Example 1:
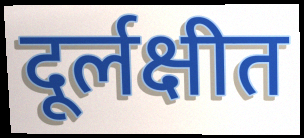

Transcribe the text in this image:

दूर्लक्षीत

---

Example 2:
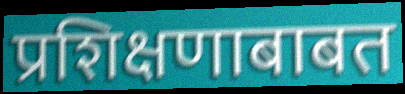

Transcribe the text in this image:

प्रशिक्षणाबाबत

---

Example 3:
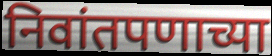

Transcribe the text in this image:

निवांतपणाच्या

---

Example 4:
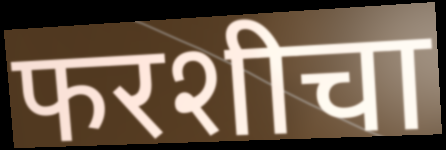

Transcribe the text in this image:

फरशीचा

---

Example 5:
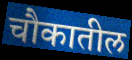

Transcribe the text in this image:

चौकातील